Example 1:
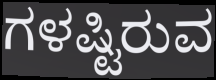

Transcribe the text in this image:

ಗಳಷ್ಟಿರುವ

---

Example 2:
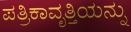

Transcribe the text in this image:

ಪತ್ರಿಕಾವೃತ್ತಿಯನ್ನು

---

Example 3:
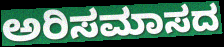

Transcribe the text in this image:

ಅರಿಸಮಾಸದ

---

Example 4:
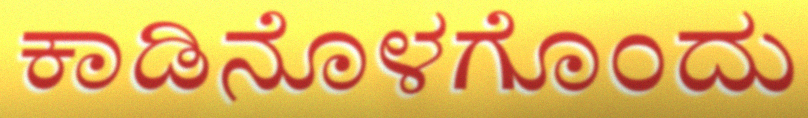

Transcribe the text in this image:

ಕಾಡಿನೊಳಗೊಂದು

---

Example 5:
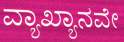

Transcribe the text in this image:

ವ್ಯಾಖ್ಯಾನವೇ